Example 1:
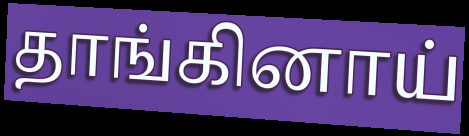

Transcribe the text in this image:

தாங்கினாய்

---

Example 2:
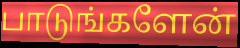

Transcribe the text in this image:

பாடுங்களேன்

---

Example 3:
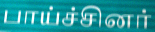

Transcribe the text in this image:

பாய்ச்சினர்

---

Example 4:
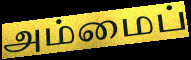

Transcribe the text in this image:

அம்மைப்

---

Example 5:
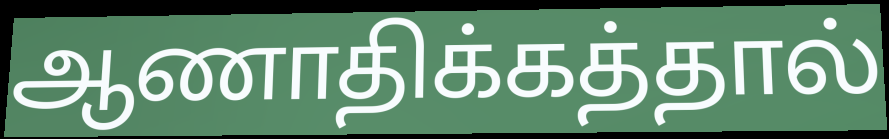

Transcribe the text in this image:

ஆணாதிக்கத்தால்